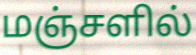
மஞ்சளில்